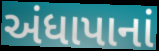
અંધાપાનાં